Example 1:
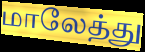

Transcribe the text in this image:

மாலேத்து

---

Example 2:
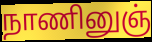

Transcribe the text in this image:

நாணினுஞ்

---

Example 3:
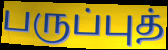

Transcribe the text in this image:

பருப்புத்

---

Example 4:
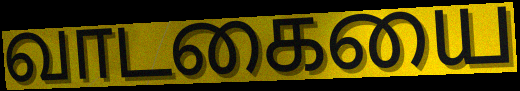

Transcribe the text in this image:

வாடகையை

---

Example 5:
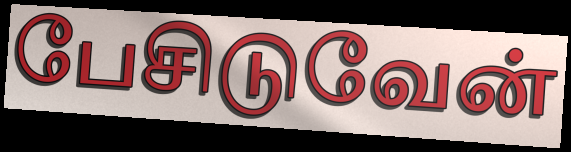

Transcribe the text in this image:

பேசிடுவேன்